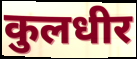
कुलधीर